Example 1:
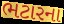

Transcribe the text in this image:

ભટારના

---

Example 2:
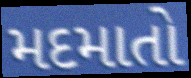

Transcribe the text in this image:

મદમાતો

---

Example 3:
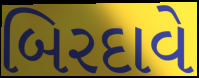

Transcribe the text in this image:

બિરદાવે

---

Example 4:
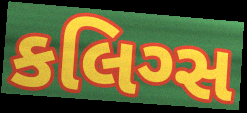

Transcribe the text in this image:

કલિગ્સ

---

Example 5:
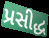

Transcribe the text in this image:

પ્રસીદ્ધ